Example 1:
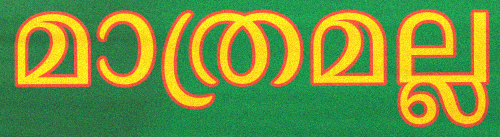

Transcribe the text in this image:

മാത്രമല്ല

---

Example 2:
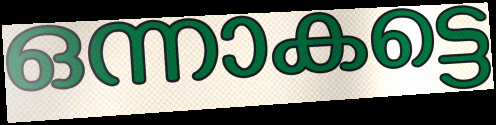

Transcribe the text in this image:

ഒന്നാകട്ടെ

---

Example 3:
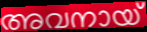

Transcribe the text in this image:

അവനായ്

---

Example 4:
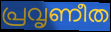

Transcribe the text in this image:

പ്രവൃണീത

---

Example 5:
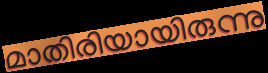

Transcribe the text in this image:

മാതിരിയായിരുന്നു